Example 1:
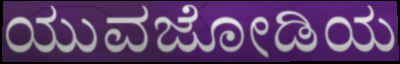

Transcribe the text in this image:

ಯುವಜೋಡಿಯ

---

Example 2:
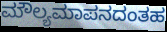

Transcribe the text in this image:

ಮೌಲ್ಯಮಾಪನದಂತಹ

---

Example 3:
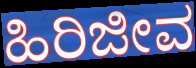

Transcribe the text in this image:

ಹಿರಿಜೀವ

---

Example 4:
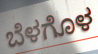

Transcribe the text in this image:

ಬೆಳಗೊಳ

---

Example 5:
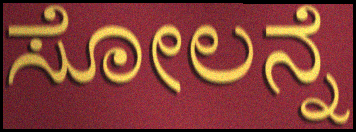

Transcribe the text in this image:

ಸೋಲನ್ನೆ